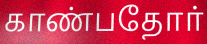
காண்பதோர்